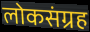
लोकसंग्रह